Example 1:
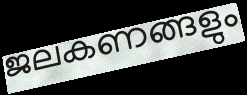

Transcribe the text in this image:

ജലകണങ്ങളും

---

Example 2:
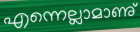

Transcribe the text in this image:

എന്നെല്ലാമാണു്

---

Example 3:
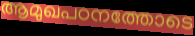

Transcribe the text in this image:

ആമുഖപഠനത്തോടെ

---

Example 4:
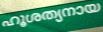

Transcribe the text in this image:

ഹൂശത്യനായ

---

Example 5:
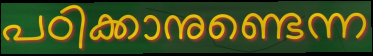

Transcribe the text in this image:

പഠിക്കാനുണ്ടെന്ന